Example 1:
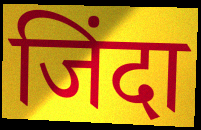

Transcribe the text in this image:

जिंदा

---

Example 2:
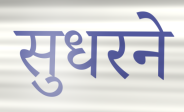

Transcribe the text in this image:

सुधरने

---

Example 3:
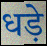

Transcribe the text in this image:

धड़े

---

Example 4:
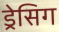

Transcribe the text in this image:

ड्रेसिग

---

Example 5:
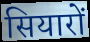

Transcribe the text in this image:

सियारों